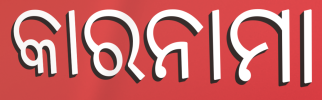
କାରନାମା